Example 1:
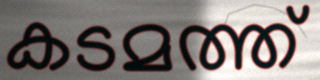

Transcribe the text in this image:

കടമത്ത്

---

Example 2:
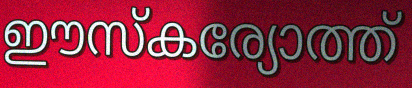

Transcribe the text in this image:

ഈസ്കര്യോത്ത്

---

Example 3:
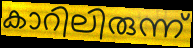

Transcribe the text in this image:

കാറിലിരുന്ന്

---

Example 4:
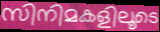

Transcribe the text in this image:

സിനിമകളിലൂടെ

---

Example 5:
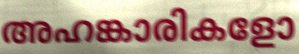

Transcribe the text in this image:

അഹങ്കാരികളോ